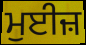
ਮੁਈਜ਼